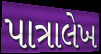
પાત્રાલેખ